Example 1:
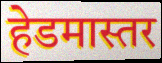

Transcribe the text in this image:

हेडमास्तर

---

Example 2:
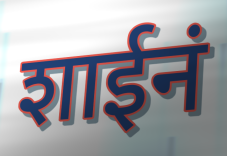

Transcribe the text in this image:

शाईनं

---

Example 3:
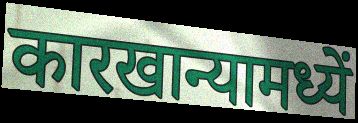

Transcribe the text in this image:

कारखान्यामध्यें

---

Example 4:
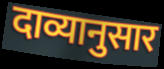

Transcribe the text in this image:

दाव्यानुसार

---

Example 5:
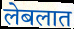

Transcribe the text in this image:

लेबलात